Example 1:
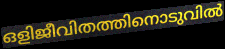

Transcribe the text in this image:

ഒളിജീവിതത്തിനൊടുവിൽ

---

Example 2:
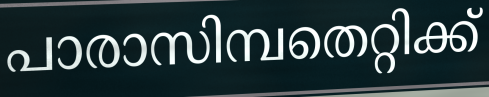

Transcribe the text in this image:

പാരാസിമ്പതെറ്റിക്ക്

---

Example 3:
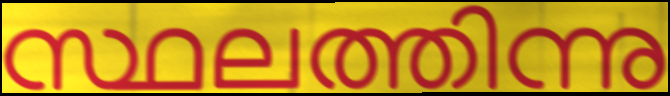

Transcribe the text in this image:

സ്ഥലത്തിന്നു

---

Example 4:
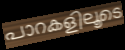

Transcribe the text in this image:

പാറകളിലൂടെ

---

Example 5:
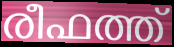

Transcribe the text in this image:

രീഫത്ത്